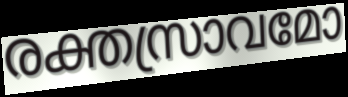
രക്തസ്രാവമോ